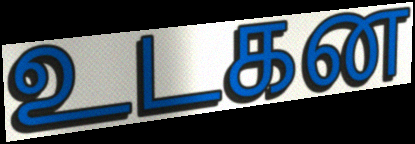
உடகன